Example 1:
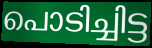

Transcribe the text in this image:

പൊടിച്ചിട്ട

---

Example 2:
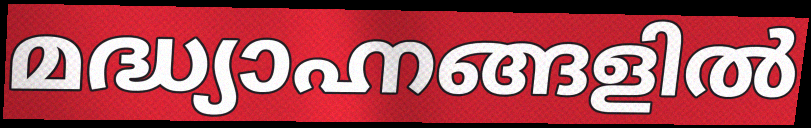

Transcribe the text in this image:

മദ്ധ്യാഹ്നങ്ങളിൽ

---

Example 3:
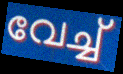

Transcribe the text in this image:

വേച്ച്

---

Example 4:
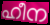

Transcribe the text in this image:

ഹീന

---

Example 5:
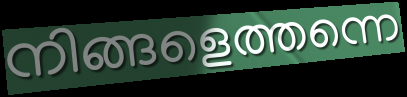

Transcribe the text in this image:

നിങ്ങളെത്തന്നെ